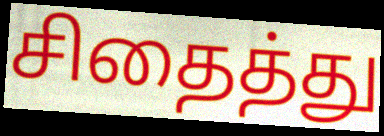
சிதைத்து